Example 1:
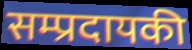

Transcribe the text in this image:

सम्प्रदायकी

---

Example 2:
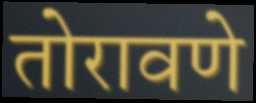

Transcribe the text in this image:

तोरावणे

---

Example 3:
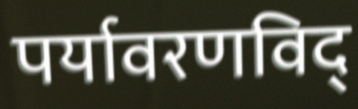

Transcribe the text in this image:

पर्यावरणविद्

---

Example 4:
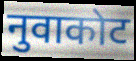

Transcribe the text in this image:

नुवाकोट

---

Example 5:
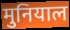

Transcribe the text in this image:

मुनियाल